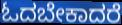
ಓದಬೇಕಾದರೆ